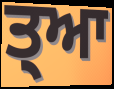
ਤ੍ਆ